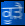
ਕੂੜੈ